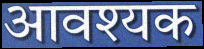
आवश्यक